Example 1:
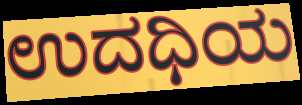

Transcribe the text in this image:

ಉದಧಿಯ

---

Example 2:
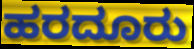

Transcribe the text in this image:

ಹರದೂರು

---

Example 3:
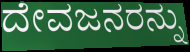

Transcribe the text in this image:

ದೇವಜನರನ್ನು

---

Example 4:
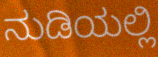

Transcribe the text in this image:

ನುಡಿಯಲ್ಲಿ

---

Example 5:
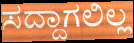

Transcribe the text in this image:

ಸದ್ದಾಗಲಿಲ್ಲ